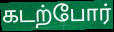
கடற்போர்